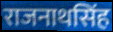
राजनाथसिंह